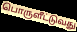
பொருளீட்டுவது